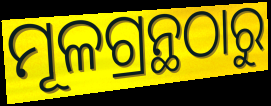
ମୂଳଗ୍ରନ୍ଥଠାରୁ